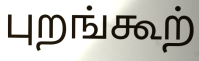
புறங்கூற்